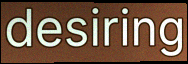
desiring